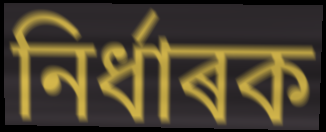
নিৰ্ধাৰক